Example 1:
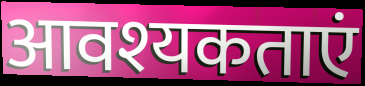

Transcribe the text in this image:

आवश्‍यकताएं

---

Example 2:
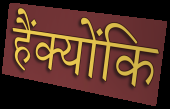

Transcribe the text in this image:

हैंक्योंकि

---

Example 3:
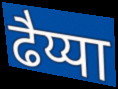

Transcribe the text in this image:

ढैय्या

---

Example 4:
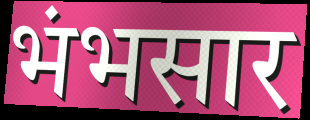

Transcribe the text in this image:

भंभसार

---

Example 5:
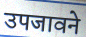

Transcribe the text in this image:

उपजावने